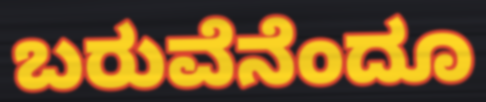
ಬರುವೆನೆಂದೂ